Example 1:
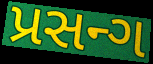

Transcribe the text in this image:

પ્રસન્ગ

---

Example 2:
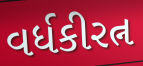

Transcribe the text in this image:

વર્ધકીરત્ન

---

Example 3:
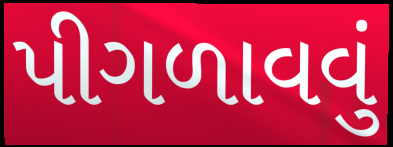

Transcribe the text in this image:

પીગળાવવું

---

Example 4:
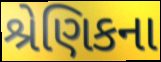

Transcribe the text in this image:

શ્રેણિકના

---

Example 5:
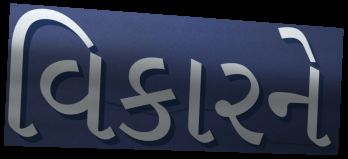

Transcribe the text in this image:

વિકારને